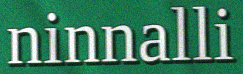
ninnalli